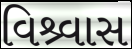
વિશ્ર્વાસ